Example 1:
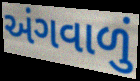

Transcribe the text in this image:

અંગવાળું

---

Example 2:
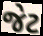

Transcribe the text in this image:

જેટ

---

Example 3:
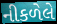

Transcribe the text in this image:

નીકળેલે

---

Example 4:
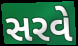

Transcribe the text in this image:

સરવે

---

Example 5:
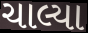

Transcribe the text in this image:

ચાલ્યા